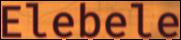
Elebele